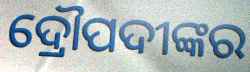
ଦ୍ରୌପଦୀଙ୍କର